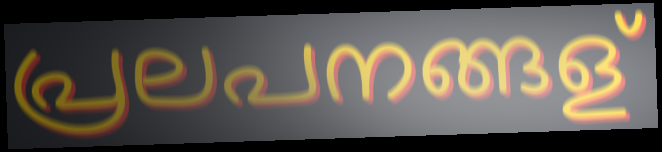
പ്രലപനങ്ങള്